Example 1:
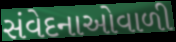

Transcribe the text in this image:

સંવેદનાઓવાળી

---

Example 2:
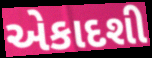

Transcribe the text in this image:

એકાદશી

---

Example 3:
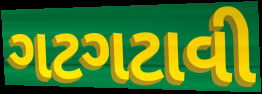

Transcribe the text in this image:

ગટગટાવી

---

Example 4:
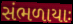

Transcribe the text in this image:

સંભળાયાઃ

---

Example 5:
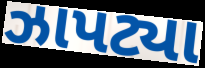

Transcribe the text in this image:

ઝાપટ્યા